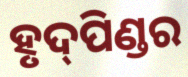
ହୃଦ୍‌ପିଣ୍ଡର